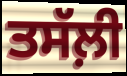
ਤਸੱਲ਼ੀ